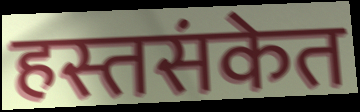
हस्तसंकेत